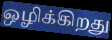
ஒழிக்கிறது